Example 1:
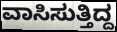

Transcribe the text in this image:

ವಾಸಿಸುತ್ತಿದ್ದ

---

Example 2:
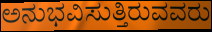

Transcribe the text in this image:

ಅನುಭವಿಸುತ್ತಿರುವವರು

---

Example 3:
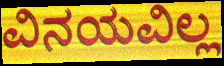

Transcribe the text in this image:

ವಿನಯವಿಲ್ಲ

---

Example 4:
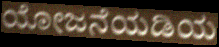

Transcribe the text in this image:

ಯೋಜನೆಯಡಿಯ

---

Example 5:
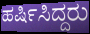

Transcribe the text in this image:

ಹರ್ಷಿಸಿದ್ದರು